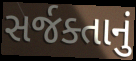
સર્જક્તાનું